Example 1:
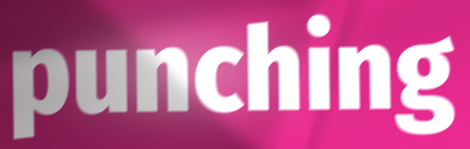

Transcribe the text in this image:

punching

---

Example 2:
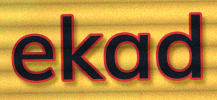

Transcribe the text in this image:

ekad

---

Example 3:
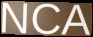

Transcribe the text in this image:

NCA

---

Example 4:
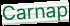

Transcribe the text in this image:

Carnap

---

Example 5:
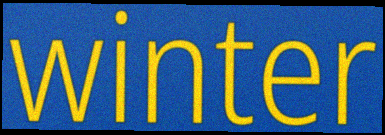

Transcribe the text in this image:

winter